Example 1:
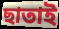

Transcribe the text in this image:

ছাতাই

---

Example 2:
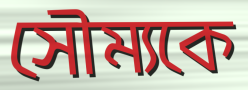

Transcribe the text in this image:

সৌম্যকে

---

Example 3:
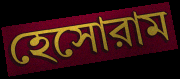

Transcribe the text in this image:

হেসোরাম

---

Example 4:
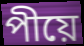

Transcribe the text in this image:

পীয়ে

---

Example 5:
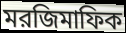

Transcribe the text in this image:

মরজিমাফিক